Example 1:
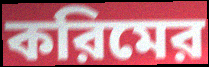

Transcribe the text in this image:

করিমের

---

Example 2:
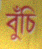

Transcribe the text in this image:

বুঁচি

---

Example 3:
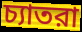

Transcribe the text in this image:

চ্যাতরা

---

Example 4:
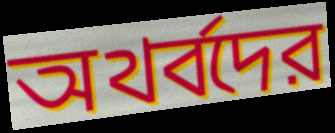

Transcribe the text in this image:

অথর্বদের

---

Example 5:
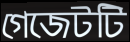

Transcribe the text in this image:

গেজেটটি